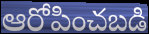
ఆరోపించబడి